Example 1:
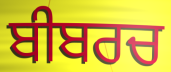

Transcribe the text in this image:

ਬੀਬਰਚ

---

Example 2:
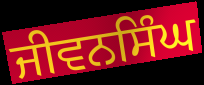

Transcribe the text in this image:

ਜੀਵਨਸਿੰਘ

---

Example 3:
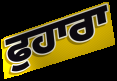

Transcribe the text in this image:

ਫੁਹਾਰਾ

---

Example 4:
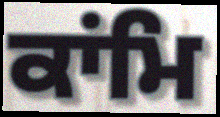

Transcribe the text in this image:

ਕਾਂਮਿ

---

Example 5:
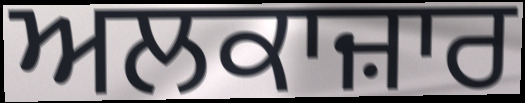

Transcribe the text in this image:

ਅਲਕਾਜ਼ਾਰ